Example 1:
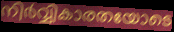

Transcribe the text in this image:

നിർവ്വികാരതയോടെ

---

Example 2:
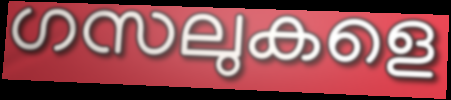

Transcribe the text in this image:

ഗസലുകളെ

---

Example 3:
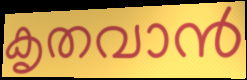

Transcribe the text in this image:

കൃതവാൻ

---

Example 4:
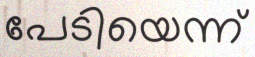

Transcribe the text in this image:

പേടിയെന്ന്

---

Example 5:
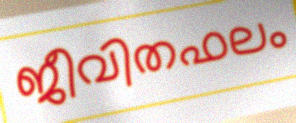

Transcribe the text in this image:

ജീവിതഫലം